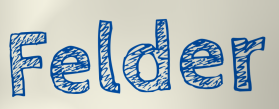
Felder